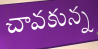
చావకున్న